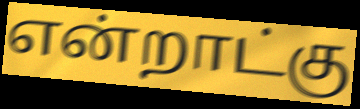
என்றாட்கு